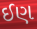
ઈણ